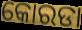
କୋରଡା